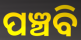
ପଞ୍ଚବି